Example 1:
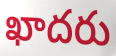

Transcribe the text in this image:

ఖాదరు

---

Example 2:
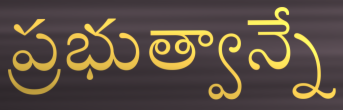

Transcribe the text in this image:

ప్రభుత్వాన్నే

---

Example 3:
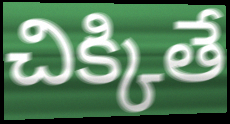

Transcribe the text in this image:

చిక్కితే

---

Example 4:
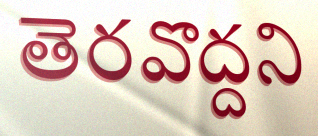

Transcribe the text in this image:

తెరవొద్దని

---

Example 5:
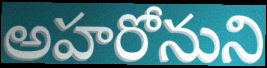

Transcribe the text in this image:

అహరోనుని